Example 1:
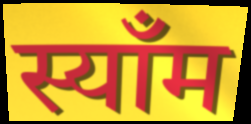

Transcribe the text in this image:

स्याँम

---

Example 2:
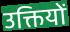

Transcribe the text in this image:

उक्तियों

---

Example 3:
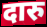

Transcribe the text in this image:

दारु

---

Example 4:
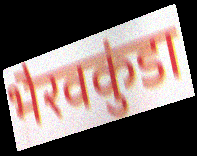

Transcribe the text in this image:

भैरवकुंडा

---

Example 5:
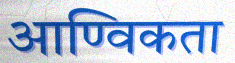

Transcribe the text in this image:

आण्विकता